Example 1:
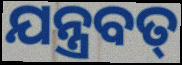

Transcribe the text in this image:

ଯନ୍ତ୍ରବତ୍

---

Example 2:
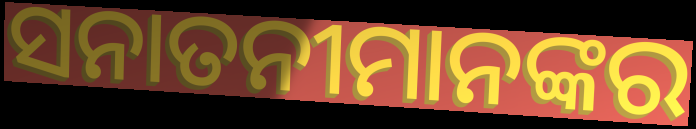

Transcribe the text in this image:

ସନାତନୀମାନଙ୍କର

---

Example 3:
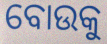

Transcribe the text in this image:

ବୋଉକୁ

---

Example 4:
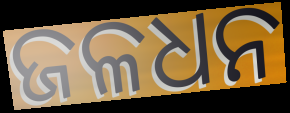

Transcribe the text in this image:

ଜଳଧନ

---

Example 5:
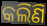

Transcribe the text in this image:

କଲିଣି